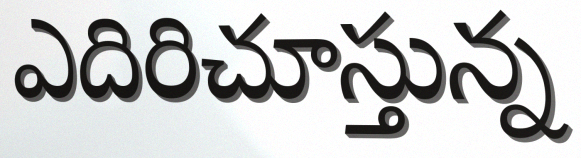
ఎదిరిచూస్తున్న